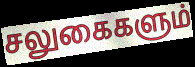
சலுகைகளும்